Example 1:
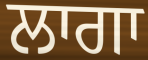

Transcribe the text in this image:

ਲਾਗਾ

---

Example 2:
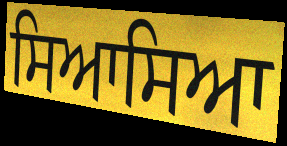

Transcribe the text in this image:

ਸਿਆਸਿਆ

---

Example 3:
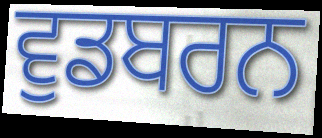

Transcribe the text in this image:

ਵੁਡਬਰਨ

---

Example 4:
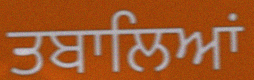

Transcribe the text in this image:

ਤਬਾਲਿਆਂ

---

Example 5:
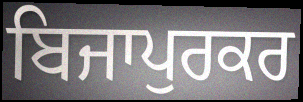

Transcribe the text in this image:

ਬਿਜਾਪੁਰਕਰ